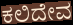
ಕಲಿದೇವ